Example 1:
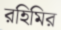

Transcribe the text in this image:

রহিমির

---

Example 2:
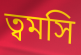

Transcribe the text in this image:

ত্বমসি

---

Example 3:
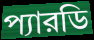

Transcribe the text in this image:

প্যারডি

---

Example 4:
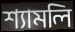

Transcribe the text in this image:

শ্যামলি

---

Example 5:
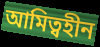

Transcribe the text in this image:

আমিত্বহীন